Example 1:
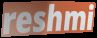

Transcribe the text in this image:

reshmi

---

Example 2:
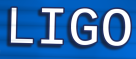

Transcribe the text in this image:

LIGO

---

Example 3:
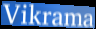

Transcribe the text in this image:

Vikrama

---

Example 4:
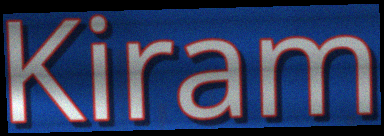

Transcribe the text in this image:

Kiram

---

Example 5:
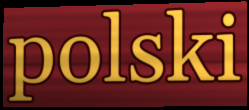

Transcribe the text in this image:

polski